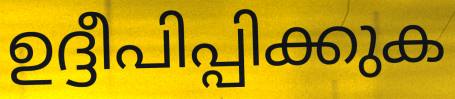
ഉദ്ദീപിപ്പിക്കുക